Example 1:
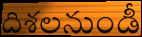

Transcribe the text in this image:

దిశలనుండీ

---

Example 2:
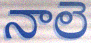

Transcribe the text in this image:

నాలె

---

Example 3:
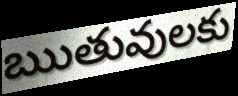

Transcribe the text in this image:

ఋతువులకు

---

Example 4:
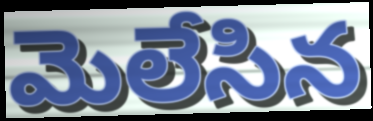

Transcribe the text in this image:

మెలేసిన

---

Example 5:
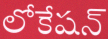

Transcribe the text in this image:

లోకేషన్